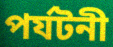
পর্যটনী